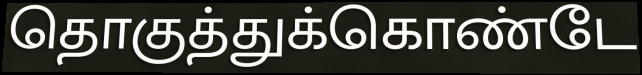
தொகுத்துக்கொண்டே